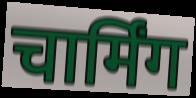
चार्मिंग